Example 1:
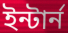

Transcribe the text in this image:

ইন্টার্ন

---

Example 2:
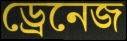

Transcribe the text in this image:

ড্রেনেজ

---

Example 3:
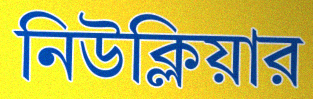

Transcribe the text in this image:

নিউক্লিয়ার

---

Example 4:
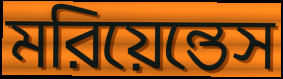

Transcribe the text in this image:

মরিয়েন্তেস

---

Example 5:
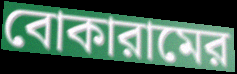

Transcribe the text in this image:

বোকারামের